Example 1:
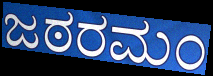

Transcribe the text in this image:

ಜಠರಮಂ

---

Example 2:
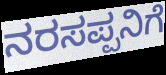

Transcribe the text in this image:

ನರಸಪ್ಪನಿಗೆ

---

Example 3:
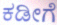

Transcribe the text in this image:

ಕಡೀಗೆ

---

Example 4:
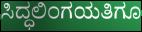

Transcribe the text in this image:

ಸಿದ್ಧಲಿಂಗಯತಿಗೂ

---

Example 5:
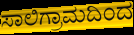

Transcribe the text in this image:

ಸಾಲಿಗ್ರಾಮದಿಂದ